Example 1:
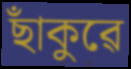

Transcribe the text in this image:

ছাঁকুৱে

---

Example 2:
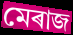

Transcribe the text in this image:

মেৰাজ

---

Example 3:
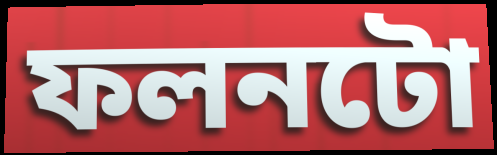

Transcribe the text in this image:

ফলনটো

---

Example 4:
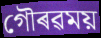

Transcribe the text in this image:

গৌৰৱময়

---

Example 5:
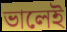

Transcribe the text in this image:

ভালেই